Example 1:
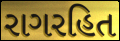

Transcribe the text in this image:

રાગરહિત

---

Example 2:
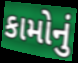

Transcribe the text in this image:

કામોનું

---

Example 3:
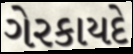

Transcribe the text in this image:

ગેરકાયદે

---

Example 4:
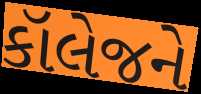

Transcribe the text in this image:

કૉલેજને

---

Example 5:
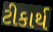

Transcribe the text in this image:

ટીકાર્થ